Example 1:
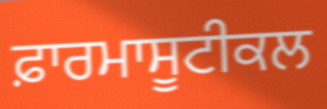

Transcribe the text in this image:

ਫ਼ਾਰਮਾਸੂਟੀਕਲ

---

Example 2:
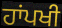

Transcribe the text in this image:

ਹਾਂਪਖੀ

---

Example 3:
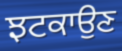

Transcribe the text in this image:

ਝਟਕਾਉਣ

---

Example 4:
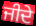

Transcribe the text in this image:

ਜੀਦੇ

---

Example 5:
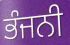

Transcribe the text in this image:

ਭੰਜਨੀ